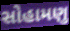
સોહામણુ